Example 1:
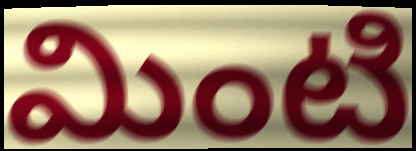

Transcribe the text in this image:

మింటి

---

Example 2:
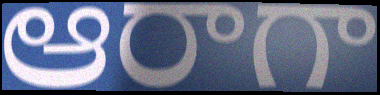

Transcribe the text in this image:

ఆరాగా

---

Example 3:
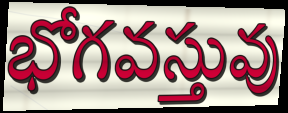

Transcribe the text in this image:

భోగవస్తువు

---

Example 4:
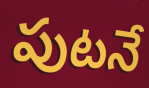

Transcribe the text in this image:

పుటనే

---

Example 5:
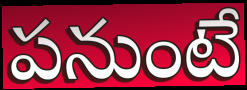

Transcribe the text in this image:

పనుంటే